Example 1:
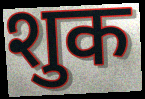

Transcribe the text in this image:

शुक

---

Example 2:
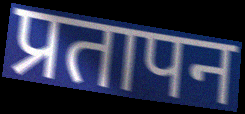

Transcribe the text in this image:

प्रतापन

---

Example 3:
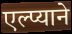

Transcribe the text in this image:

एल्प्याने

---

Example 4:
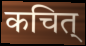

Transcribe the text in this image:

कचित्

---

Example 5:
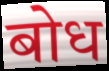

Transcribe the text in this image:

बोध